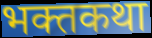
भक्तकथा